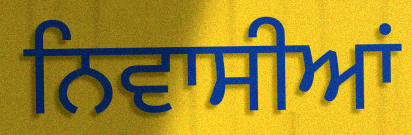
ਨਿਵਾਸੀਆਂ